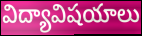
విద్యావిషయాలు